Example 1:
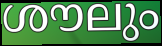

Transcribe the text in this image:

ശൗലും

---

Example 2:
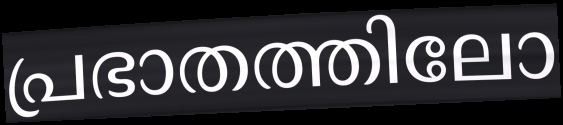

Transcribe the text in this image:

പ്രഭാതത്തിലോ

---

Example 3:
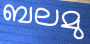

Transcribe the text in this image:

ബലമു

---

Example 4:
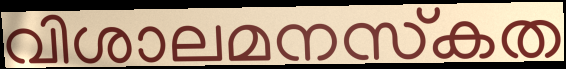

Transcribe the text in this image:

വിശാലമനസ്‌കത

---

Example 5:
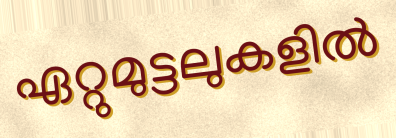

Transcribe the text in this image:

ഏറ്റുമുട്ടലുകളിൽ